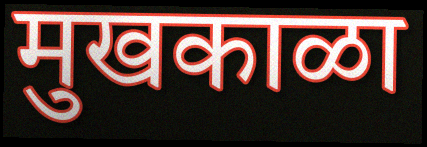
मुखकाळा